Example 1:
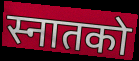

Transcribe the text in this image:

स्नातको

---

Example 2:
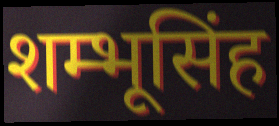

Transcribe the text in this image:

शम्भूसिंह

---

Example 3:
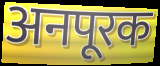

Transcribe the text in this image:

अनपूरक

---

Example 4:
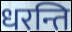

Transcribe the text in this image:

धरन्ति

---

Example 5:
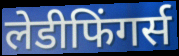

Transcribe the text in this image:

लेडीफिंगर्स